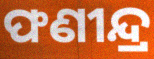
ଫଣୀନ୍ଦ୍ର